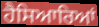
ਹੈਸਿਆਰਿਆਂ